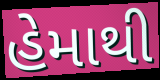
હેમાથી